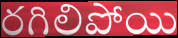
రగిలిపోయి